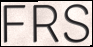
FRS